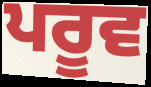
ਪਰੂਵ